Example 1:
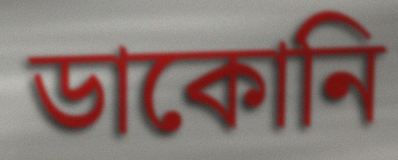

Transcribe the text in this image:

ডাকোনি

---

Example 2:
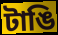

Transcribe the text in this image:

টাঙি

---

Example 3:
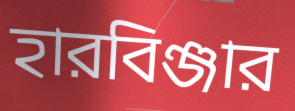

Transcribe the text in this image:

হারবিঞ্জার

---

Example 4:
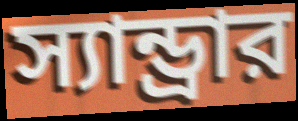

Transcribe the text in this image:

স্যান্ড্রার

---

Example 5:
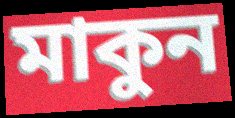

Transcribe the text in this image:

মাকুন